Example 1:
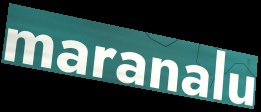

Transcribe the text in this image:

maranalu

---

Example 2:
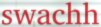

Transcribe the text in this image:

swachh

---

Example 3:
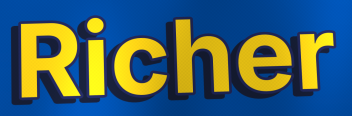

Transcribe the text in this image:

Richer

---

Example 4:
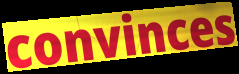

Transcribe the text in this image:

convinces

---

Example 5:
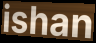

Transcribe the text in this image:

ishan